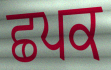
ਛਪਕ